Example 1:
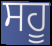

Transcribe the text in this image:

ਸਹੂ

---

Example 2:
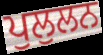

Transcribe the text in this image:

ਪੁਲੁਲਨ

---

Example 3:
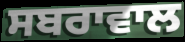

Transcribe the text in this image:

ਸਬਰਾਵਾਲ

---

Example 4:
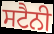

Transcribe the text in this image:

ਸਟੈਨੀ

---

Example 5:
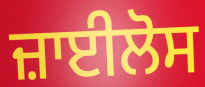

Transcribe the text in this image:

ਜ਼ਾਈਲੋਸ